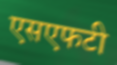
एसएफटी